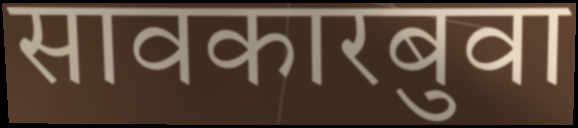
सावकारबुवा